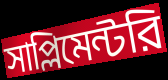
সাপ্লিমেন্টরি